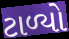
ટાળ્યો